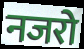
नजरो